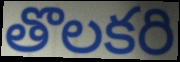
తొలకరి